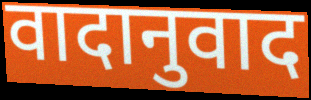
वादानुवाद